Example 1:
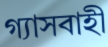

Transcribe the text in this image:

গ্যাসবাহী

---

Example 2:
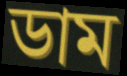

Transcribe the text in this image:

ডাম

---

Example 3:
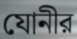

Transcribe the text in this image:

যোনীর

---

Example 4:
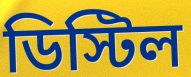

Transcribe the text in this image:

ডিস্টিল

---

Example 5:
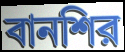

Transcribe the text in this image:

বানশির